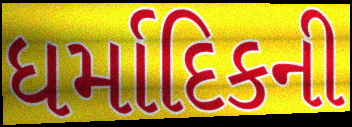
ધર્માદિકની